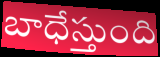
బాధేస్తుంది